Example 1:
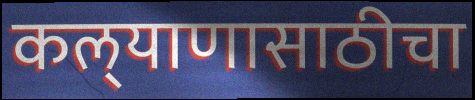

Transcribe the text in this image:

कल्याणासाठीचा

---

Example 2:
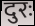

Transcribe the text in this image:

दुरः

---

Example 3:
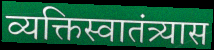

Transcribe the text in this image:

व्यक्तिस्वातंत्र्यास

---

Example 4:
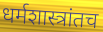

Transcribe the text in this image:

धर्मशास्त्रांतच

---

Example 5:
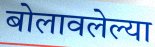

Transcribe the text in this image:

बोलावलेल्या